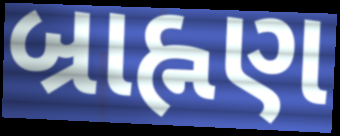
બ્રાહ્નણ